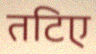
तटिए